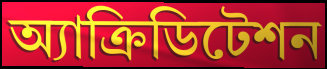
অ্যাক্রিডিটেশন